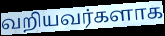
வறியவர்களாக